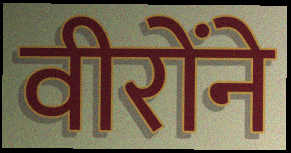
वीरोंने